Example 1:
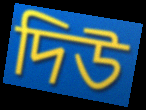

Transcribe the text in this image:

দিউ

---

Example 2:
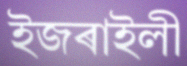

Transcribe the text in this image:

ইজৰাইলী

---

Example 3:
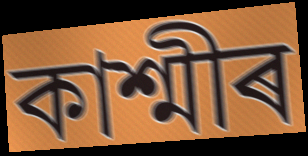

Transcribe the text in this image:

কাশ্মীৰ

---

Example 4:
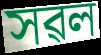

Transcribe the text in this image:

সৱল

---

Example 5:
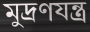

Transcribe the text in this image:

মুদ্ৰণযন্ত্ৰ